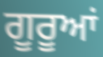
ਗੂਰੂਆਂ